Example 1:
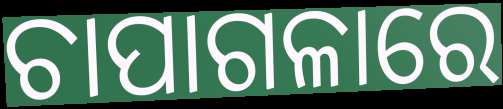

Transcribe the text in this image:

ଚାପାଗଳାରେ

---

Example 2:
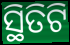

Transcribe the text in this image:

ସ୍ଥିତିଟି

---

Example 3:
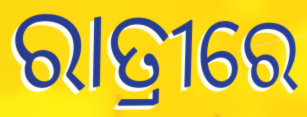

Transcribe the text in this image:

ରାତ୍ରୀରେ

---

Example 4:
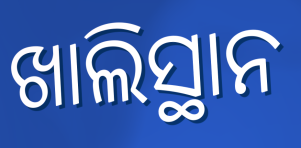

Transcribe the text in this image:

ଖାଲିସ୍ଥାନ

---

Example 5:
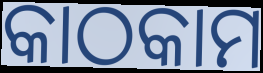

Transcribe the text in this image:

କାଠକାମ